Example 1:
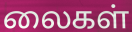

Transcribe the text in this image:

லைகள்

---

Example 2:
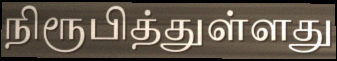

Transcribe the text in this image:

நிரூபித்துள்ளது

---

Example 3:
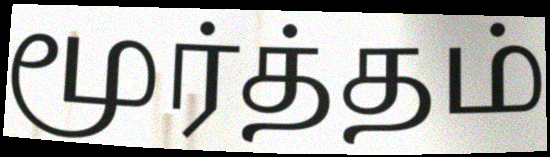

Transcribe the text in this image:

மூர்த்தம்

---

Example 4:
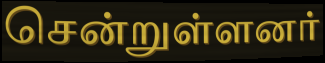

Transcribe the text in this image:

சென்றுள்ளனர்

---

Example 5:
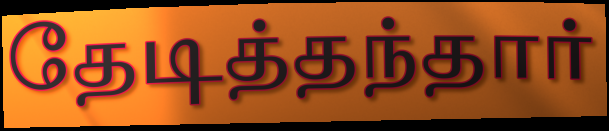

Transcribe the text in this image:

தேடித்தந்தார்